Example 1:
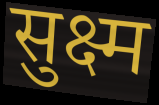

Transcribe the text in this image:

सुक्ष्म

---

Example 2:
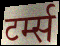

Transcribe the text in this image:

टर्म्स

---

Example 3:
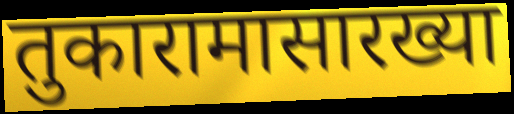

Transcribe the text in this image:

तुकारामासारख्या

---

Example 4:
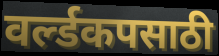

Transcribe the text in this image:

वर्ल्डकपसाठी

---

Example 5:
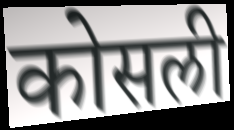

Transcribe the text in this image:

कोसली